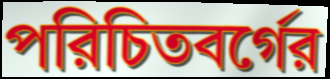
পরিচিতবর্গের